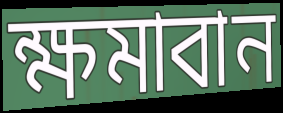
ক্ষমাবান